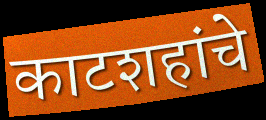
काटशहांचे